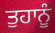
ਤੁਹਾਨੂੰ